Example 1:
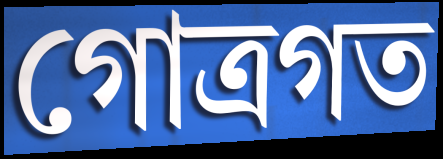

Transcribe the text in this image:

গোত্রগত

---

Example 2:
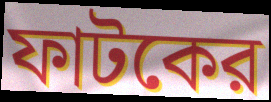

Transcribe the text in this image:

ফাটকের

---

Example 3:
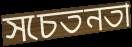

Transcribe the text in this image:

সচেতনতা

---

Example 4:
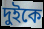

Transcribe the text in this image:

দুইকে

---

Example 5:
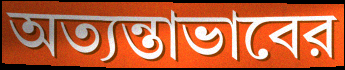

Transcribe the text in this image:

অত্যন্তাভাবের